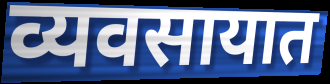
व्यवसायात